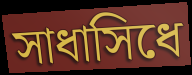
সাধাসিধে